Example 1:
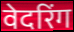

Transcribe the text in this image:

वेदरिंग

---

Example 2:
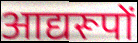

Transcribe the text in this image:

आद्यरूपों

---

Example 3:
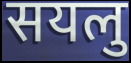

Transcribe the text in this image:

सयलु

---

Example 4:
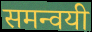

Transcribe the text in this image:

समन्वयी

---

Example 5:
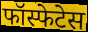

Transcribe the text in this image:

फॉस्फेटेस